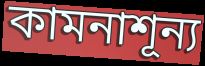
কামনাশূন্য